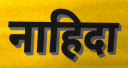
नाहिदा